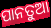
ପାନତୁଆ